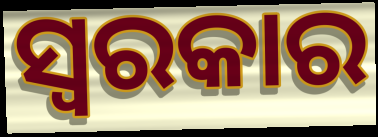
ସ୍ୱରକାର